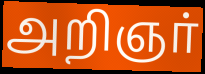
அறிஞர்